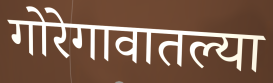
गोरेगावातल्या